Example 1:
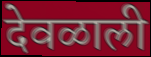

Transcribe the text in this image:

देवळाली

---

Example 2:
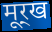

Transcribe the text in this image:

मूर्ख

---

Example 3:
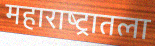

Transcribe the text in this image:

महाराष्ट्रातला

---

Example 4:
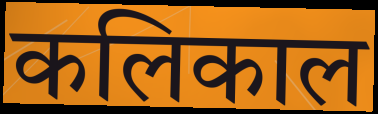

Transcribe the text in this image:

कलिकाल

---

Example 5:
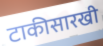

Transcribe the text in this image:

टाकीसारखी